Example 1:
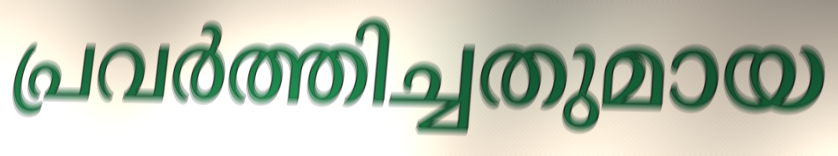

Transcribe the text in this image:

പ്രവർത്തിച്ചതുമായ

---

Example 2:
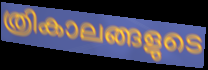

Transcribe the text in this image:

ത്രികാലങ്ങളുടെ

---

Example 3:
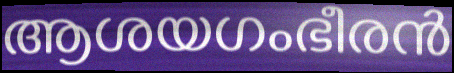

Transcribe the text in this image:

ആശയഗംഭീരൻ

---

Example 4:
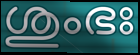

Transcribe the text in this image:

ശുംഭഃ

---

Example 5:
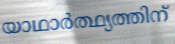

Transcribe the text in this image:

യാഥാർത്ഥ്യത്തിന്